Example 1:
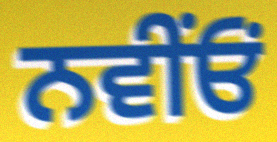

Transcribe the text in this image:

ਨਵੀਂਓਂ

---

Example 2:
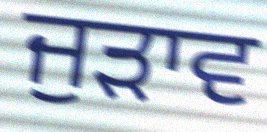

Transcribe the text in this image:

ਜੁੜਾਵ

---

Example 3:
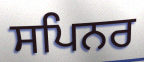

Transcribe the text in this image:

ਸਪਿਨਰ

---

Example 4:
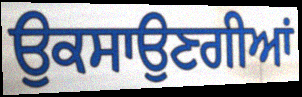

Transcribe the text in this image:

ਉਕਸਾਉਣਗੀਆਂ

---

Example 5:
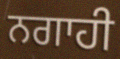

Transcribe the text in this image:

ਨਗਾਹੀ